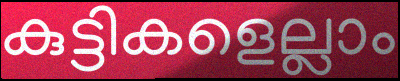
കുട്ടികളെല്ലാം